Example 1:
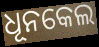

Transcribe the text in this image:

ଧୂନକେଲ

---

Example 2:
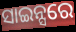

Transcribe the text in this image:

ସାଇନ୍ସରେ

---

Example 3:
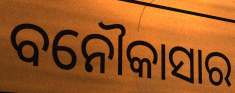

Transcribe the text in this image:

ବନୌକାସାର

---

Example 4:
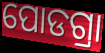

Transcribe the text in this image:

ପୋଡଗ୍ରା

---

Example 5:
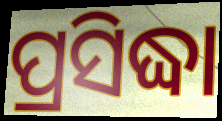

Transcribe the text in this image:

ପ୍ରସିଦ୍ଧା